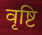
वृष्टि